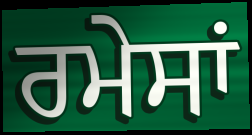
ਰਮੇਸਾਂ